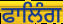
ਫਾਲਿੰਗ